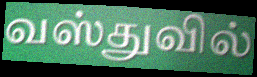
வஸ்துவில்